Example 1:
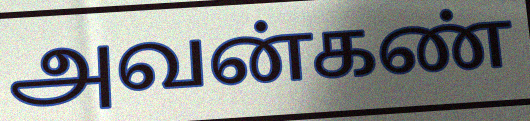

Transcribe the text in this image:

அவன்கண்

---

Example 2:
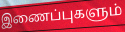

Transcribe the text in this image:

இணைப்புகளும்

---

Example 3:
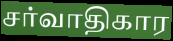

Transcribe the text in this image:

சர்வாதிகார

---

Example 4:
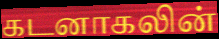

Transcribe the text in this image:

கடனாகலின்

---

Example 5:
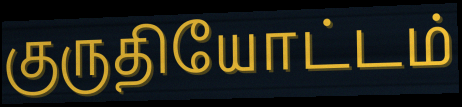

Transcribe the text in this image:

குருதியோட்டம்